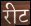
रीट